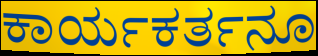
ಕಾರ್ಯಕರ್ತನೂ